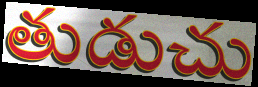
తుడుచు